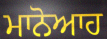
ਮਾਨੋਆਹ